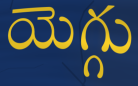
యెగ్గు